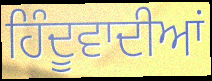
ਹਿੰਦੂਵਾਦੀਆਂ